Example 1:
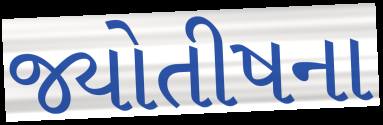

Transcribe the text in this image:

જ્યોતીષના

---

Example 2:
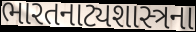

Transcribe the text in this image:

ભારતનાટ્યશાસ્ત્રના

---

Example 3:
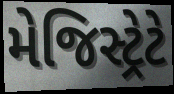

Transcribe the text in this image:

મેજિસ્ટ્રેટે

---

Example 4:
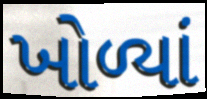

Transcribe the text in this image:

ખોળ્યાં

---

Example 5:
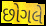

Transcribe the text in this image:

છોગલે